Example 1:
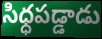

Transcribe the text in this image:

సిధ్ధపడ్డాడు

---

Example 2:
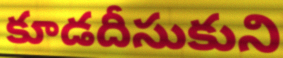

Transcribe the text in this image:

కూడదీసుకుని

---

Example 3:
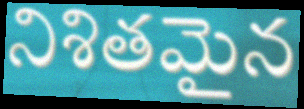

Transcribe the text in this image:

నిశితమైన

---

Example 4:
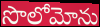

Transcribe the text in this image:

సొలోమోను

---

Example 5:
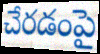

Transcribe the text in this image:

చేరడంపై